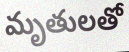
మృతులతో